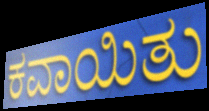
ಕವಾಯಿತು